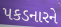
પકડનારને